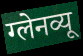
ग्लेनव्यू